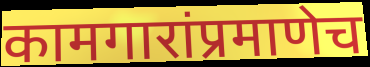
कामगारांप्रमाणेच